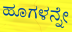
ಹೂಗಳನ್ನೇ